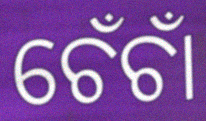
ଚେଁଚାଁ